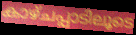
കാഴ്ചപ്പാടിലൂടെ